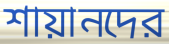
শায়ানদের